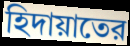
হিদায়াতের